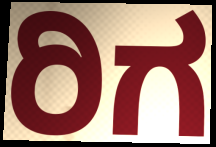
ರಿಗ